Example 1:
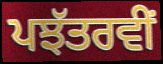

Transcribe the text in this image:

ਪਝੱਤਰਵੀਂ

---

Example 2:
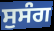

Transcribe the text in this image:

ਸੁਸੰਗ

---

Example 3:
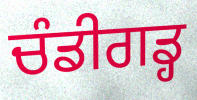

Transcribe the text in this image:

ਚੰਡੀਗਡ੍ਹ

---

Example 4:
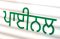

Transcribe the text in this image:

ਪਾਈਨਲ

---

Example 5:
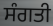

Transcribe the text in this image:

ਸੰਗਤੀ